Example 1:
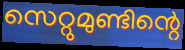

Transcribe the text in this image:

സെറ്റുമുണ്ടിന്റെ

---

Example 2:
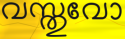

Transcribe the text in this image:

വസ്തുവോ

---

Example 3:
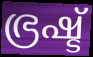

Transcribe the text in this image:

ഭ്രഷ്ട്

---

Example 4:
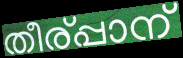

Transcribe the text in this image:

തീര്പ്പാന്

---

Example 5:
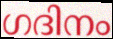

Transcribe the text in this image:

ഗദിനം